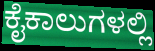
ಕೈಕಾಲುಗಳಲ್ಲಿ